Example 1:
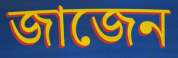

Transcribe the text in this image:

জাজেন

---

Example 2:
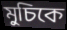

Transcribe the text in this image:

মুচিকে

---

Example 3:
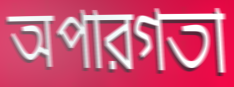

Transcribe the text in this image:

অপারগতা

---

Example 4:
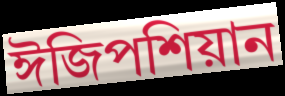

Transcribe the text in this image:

ঈজিপশিয়ান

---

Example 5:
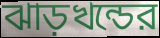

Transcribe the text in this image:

ঝাড়খন্ডের